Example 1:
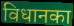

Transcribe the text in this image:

विधानका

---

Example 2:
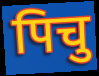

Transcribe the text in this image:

पिचु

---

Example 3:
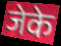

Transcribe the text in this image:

जेके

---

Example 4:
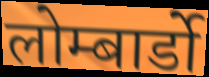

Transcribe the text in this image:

लोम्बार्डो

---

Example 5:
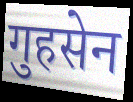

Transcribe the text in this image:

गुहसेन